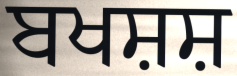
ਬਖਸ਼ਸ਼